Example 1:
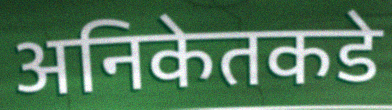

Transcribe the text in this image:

अनिकेतकडे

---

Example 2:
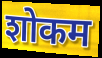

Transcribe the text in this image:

शोकम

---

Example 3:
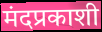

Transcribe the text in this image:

मंदप्रकाशी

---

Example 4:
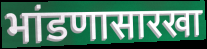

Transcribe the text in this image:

भांडणासारखा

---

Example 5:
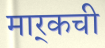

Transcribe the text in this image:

मार्कची